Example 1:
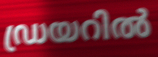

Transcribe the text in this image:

ഡ്രയറിൽ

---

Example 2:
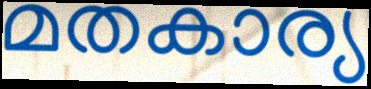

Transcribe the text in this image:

മതകാര്യ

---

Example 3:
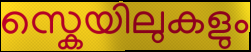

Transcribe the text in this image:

സ്കെയിലുകളും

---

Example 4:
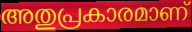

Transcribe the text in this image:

അതുപ്രകാരമാണ്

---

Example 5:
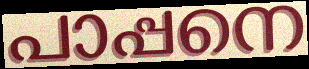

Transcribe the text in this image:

പാപ്പനെ